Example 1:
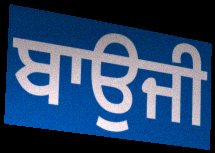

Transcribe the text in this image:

ਬਾਉਜੀ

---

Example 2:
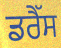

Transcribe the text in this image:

ਡਰੈੱਸ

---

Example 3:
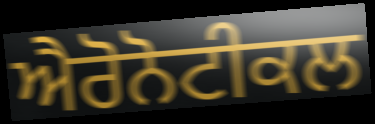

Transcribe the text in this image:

ਐਰੋਨੋਟੀਕਲ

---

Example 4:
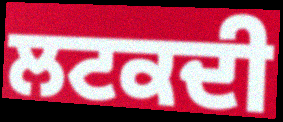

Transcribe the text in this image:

ਲਟਕਦੀ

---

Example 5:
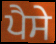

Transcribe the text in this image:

ਪੈਸੇ